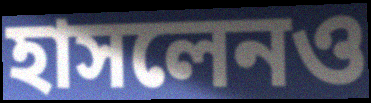
হাসলেনও